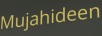
Mujahideen